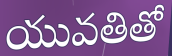
యువతితో